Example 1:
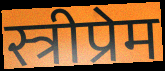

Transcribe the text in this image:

स्त्रीप्रेम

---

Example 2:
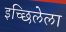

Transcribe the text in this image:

इच्छिलेला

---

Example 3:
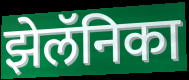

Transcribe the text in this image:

झेलॅनिका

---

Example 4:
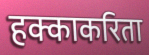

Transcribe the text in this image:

हक्काकरिता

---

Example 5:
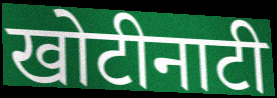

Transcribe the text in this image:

खोटीनाटी